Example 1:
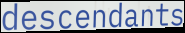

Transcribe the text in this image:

descendants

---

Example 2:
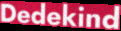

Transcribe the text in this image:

Dedekind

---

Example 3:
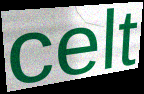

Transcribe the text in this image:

celt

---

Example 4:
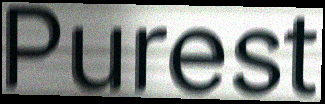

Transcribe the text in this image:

Purest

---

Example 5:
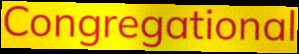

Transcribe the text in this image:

Congregational